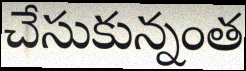
చేసుకున్నంత